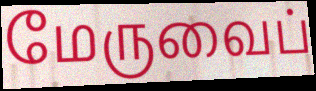
மேருவைப்